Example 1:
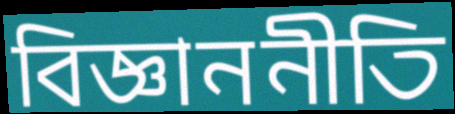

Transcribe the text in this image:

বিজ্ঞাননীতি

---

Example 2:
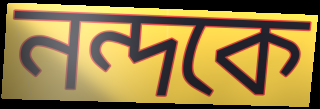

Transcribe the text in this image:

নন্দকে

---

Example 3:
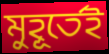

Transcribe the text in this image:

মুহূর্তেই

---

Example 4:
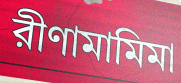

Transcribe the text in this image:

রীণামামিমা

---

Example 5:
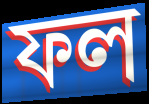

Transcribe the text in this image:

ফল